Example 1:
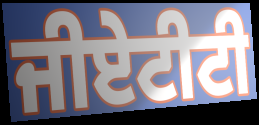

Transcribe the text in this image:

ਜੀਏਟੀਟੀ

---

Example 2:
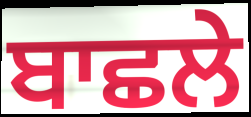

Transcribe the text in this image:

ਬਾਛਲੇ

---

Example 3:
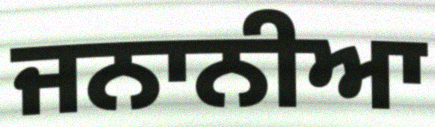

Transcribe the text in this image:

ਜਨਾਨੀਆ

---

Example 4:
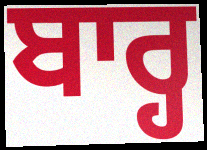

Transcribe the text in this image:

ਬਾਰ੍ਹ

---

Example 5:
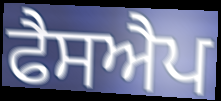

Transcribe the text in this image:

ਫੈਸਐਪ